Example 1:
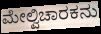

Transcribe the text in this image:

ಮೇಲ್ವಿಚಾರಕನು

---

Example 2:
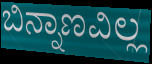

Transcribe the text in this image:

ಬಿನ್ನಾಣವಿಲ್ಲ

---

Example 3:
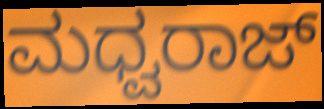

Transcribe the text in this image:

ಮಧ್ವರಾಜ್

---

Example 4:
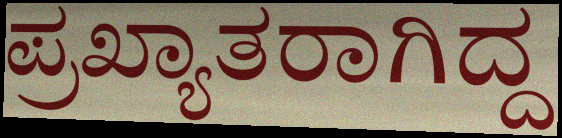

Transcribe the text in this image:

ಪ್ರಖ್ಯಾತರಾಗಿದ್ದ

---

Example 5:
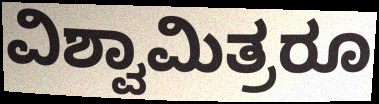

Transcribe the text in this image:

ವಿಶ್ವಾಮಿತ್ರರೂ